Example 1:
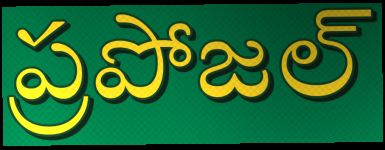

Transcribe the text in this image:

ప్రపోజల్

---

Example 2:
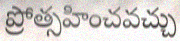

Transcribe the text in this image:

ప్రోత్సహించవచ్చు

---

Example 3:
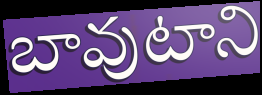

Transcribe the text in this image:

బావుటాని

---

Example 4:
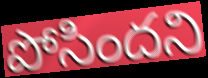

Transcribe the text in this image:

పోసిందని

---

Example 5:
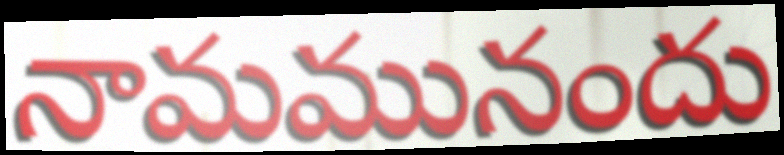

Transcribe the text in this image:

నామమునందు